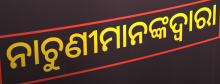
ନାଚୁଣୀମାନଙ୍କଦ୍ୱାରା